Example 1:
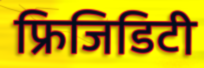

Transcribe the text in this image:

फ्रिजिडिटी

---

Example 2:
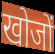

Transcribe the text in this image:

खोजों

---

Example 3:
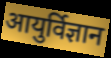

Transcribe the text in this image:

आयुर्विज्ञान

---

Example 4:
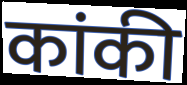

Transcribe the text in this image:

कांकी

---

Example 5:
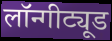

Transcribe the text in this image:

लॉन्गीट्यूड